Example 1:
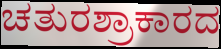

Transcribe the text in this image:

ಚತುರಶ್ರಾಕಾರದ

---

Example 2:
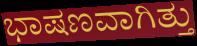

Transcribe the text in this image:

ಭಾಷಣವಾಗಿತ್ತು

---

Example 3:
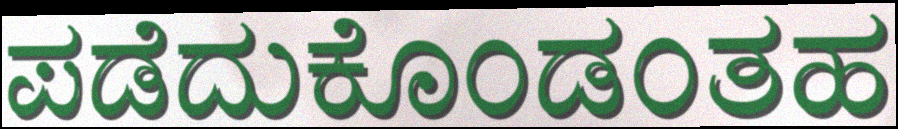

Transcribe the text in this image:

ಪಡೆದುಕೊಂಡಂತಹ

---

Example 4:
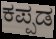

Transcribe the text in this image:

ಕಪ್ಪಡ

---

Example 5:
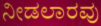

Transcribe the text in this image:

ನೀಡಲಾರವು